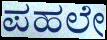
ಪಹಲೇ